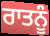
ਰਾਤਨੂੰ